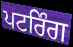
ਪਟਰਿੰਗ